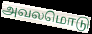
அவலமொடு